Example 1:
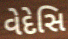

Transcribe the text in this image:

વેદેસિ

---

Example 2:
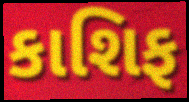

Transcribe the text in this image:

કાશિફ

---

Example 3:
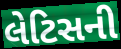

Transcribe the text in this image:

લેટિસની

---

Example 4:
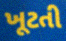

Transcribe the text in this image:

ખૂટતી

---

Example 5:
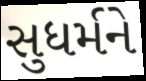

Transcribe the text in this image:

સુધર્મને